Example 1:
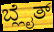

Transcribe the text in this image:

ಬ್ಲೈತ್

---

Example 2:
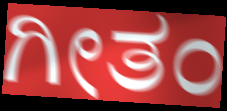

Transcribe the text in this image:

ಗೀತಂ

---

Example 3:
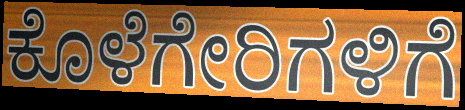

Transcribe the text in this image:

ಕೊಳೆಗೇರಿಗಳಿಗೆ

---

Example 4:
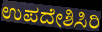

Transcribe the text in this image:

ಉಪದೇಶಿಸಿರಿ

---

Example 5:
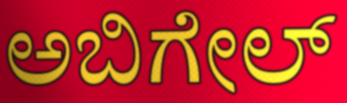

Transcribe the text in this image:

ಅಬಿಗೇಲ್